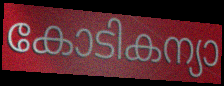
കോടികന്യാ